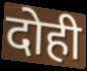
दोही